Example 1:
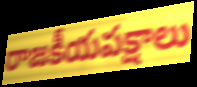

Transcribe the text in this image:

రాజకీయపక్షాలు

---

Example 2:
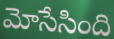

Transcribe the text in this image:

మోసేసింది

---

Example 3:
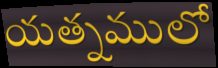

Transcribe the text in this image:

యత్నములో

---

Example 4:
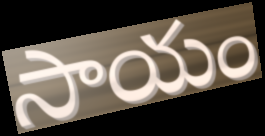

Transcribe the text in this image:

సాయం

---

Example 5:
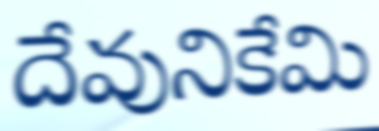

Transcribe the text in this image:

దేవునికేమి